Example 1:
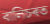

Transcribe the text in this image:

বালিচৰত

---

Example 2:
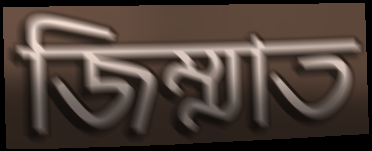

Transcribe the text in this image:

জিম্মাত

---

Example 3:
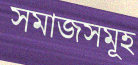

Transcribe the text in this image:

সমাজসমূহ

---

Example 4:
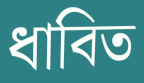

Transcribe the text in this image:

ধাবিত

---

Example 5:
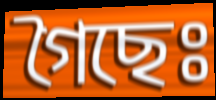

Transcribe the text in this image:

গৈছেঃ